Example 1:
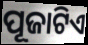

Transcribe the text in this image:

ପୂଜାଟିଏ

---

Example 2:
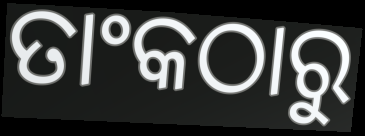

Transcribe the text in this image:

ତାଂକଠାରୁ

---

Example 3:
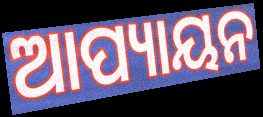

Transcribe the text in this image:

ଆପ୍ୟାୟନ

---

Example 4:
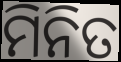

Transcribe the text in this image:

ମିନିତ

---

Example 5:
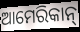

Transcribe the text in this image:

ଆମେରିକାନ୍